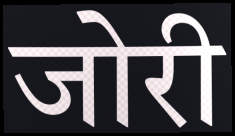
जोरी